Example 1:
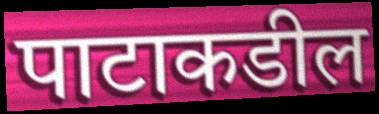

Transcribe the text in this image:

पाटाकडील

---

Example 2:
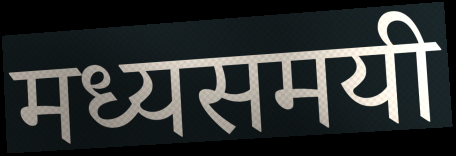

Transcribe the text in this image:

मध्यसमयी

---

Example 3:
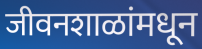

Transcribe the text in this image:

जीवनशाळांमधून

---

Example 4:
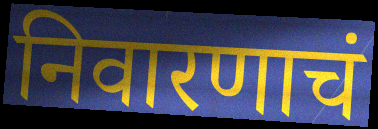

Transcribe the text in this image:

निवारणाचं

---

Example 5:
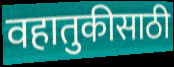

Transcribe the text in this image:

वहातुकीसाठी